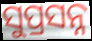
ସୁପ୍ରସନ୍ନ